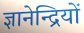
ज्ञानेन्द्रियों